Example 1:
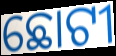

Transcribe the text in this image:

ଛୋଟୀ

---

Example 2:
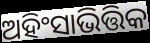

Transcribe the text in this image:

ଅହିଂସାଭିତ୍ତିକ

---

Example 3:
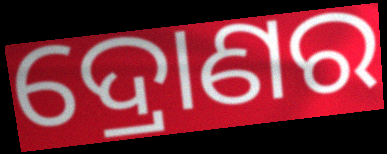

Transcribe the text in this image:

ଦ୍ରୋଣର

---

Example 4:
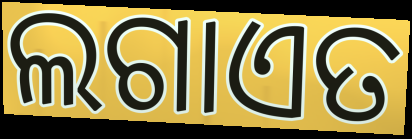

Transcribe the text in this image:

ଲଗାଏତ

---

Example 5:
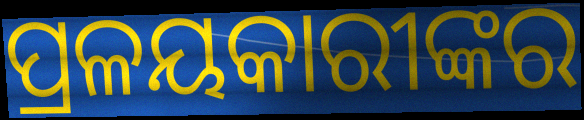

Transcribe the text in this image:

ପ୍ରଳୟକାରୀଙ୍କର